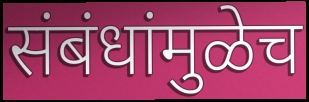
संबंधांमुळेच